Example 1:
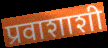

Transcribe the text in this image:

प्रवाशाशी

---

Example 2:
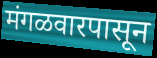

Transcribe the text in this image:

मंगळवारपासून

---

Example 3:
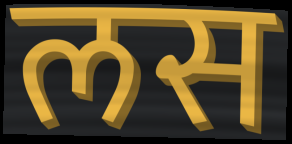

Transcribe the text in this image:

लस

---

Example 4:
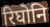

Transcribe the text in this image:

रिघोनि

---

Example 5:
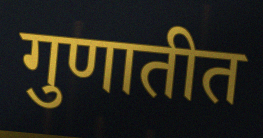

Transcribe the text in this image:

गुणातीत